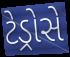
ટેડ્રોસે